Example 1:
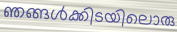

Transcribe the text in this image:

ഞങ്ങൾക്കിടയിലൊരു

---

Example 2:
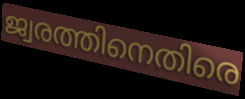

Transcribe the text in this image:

ജ്വരത്തിനെതിരെ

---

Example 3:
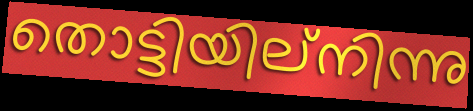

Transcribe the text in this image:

തൊട്ടിയില്നിന്നു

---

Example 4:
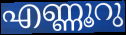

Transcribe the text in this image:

എണ്ണൂറു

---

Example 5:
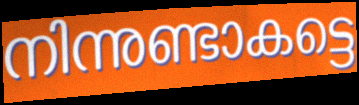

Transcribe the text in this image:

നിന്നുണ്ടാകട്ടെ